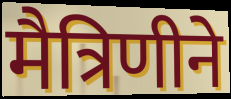
मैत्रिणीने